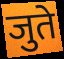
जुते